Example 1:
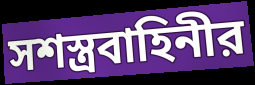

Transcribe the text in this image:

সশস্ত্রবাহিনীর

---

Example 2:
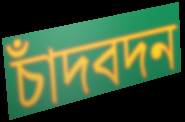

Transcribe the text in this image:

চাঁদবদন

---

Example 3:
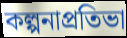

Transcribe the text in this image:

কল্পনাপ্রতিভা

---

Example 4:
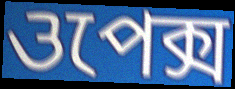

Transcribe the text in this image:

ওপেক্স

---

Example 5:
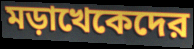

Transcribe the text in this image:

মড়াখেকেদের